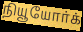
நியூயோர்க்